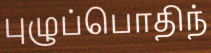
புழுப்பொதிந்